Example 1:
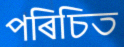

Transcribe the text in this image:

পৰিচিত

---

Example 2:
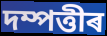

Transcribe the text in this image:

দম্পত্তীৰ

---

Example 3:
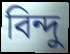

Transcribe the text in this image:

বিন্দু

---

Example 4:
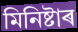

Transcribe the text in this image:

মিনিষ্টাৰ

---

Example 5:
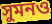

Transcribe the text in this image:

সুমনও